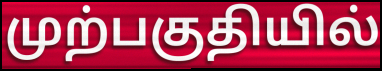
முற்பகுதியில்